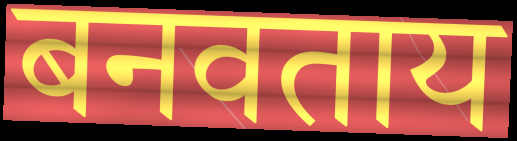
बनवताय